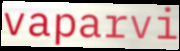
vaparvi